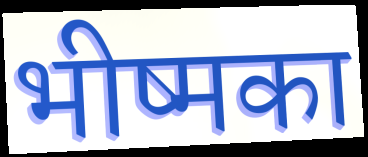
भीष्मका